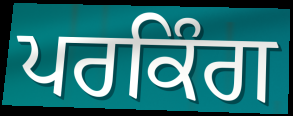
ਪਰਕਿੰਗ